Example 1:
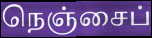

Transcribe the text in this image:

நெஞ்சைப்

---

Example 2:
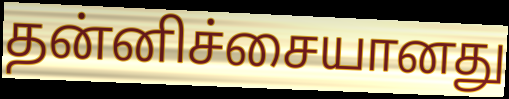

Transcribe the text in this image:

தன்னிச்சையானது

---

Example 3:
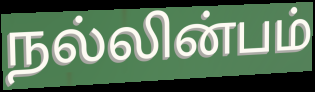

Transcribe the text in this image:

நல்லின்பம்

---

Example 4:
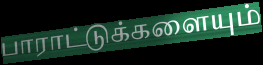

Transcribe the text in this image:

பாராட்டுக்களையும்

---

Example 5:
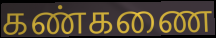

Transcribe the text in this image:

கண்கணை